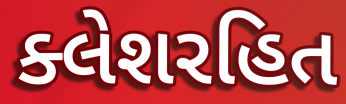
ક્લેશરહિત